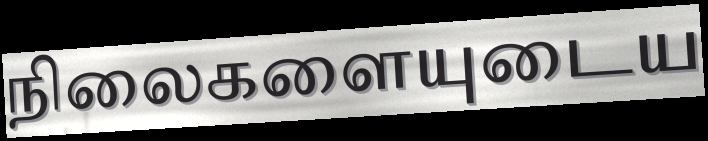
நிலைகளையுடைய